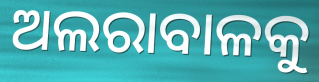
ଅଲରାବାଳକୁ